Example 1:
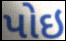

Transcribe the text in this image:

પોઇ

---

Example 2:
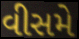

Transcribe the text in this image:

વીસમે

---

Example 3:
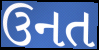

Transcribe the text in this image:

ઉનત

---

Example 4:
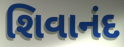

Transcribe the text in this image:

શિવાનંદ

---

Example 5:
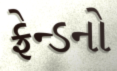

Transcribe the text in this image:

ફ્રેન્ડનો